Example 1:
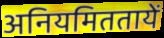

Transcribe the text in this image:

अनियमिततायें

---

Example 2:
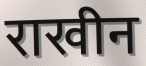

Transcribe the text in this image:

राखीन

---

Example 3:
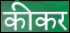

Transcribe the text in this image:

कीकर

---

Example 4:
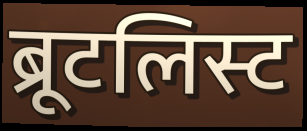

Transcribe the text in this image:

ब्रूटलिस्ट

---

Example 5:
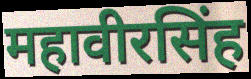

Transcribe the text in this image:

महावीरसिंह